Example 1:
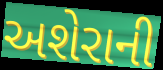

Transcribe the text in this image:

અશેરાની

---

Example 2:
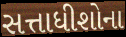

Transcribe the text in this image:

સત્તાધીશોના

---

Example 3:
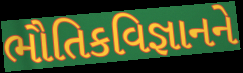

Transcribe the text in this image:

ભૌતિકવિજ્ઞાનને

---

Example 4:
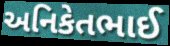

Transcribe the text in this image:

અનિકેતભાઈ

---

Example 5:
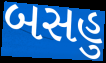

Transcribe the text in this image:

બસહુ